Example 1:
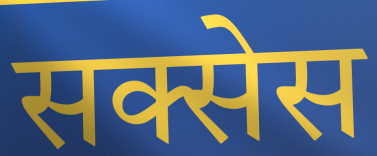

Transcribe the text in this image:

सक्सेस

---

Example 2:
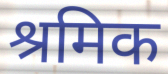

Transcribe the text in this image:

श्रमिक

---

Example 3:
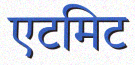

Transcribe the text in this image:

एटमिट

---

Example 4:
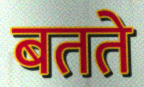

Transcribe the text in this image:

बतते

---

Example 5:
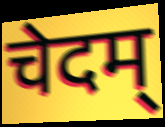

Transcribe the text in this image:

चेदम्